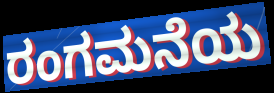
ರಂಗಮನೆಯ